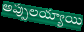
అప్పులయ్యాయి